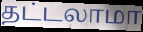
தட்டலாமா